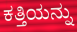
ಕತ್ತಿಯನ್ನು